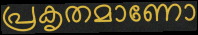
പ്രകൃതമാണോ